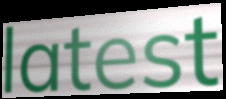
latest